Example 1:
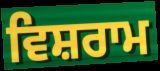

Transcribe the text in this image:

ਵਿਸ਼ਰਾਮ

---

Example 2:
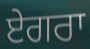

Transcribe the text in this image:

ਏਗਰਾ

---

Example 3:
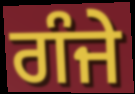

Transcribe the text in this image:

ਗੰਜੇ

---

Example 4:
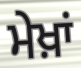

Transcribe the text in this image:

ਮੇਖ਼ਾਂ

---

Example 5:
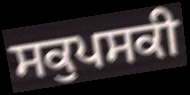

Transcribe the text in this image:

ਸਕੁਪਸਕੀ